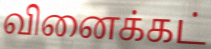
வினைக்கட்